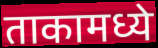
ताकामध्ये